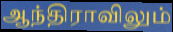
ஆந்திராவிலும்